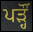
ਪੜ੍ਹੌਂ